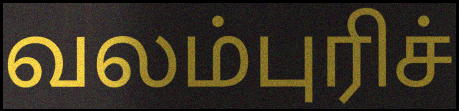
வலம்புரிச்